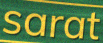
sarat